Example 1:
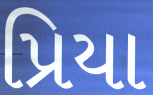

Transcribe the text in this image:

પ્રિયા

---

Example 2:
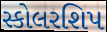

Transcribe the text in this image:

સ્કોલરશિપ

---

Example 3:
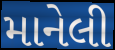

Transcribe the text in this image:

માનેલી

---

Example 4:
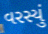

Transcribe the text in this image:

વરસ્યું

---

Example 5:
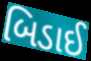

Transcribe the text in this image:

બિડાઈ